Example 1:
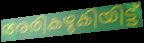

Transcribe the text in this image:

അരികഴുകിയിട്ട്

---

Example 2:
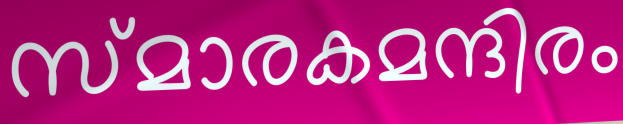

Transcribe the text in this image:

സ്മാരകമന്ദിരം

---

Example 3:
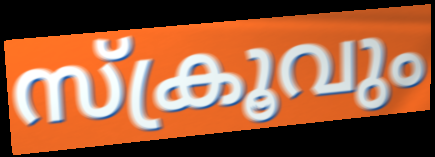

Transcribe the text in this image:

സ്ക്രൂവും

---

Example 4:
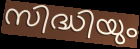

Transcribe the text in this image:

സിദ്ധിയും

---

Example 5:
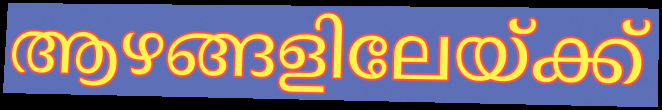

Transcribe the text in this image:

ആഴങ്ങളിലേയ്ക്ക്